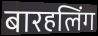
बारहलिंग